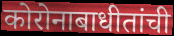
कोरोनाबाधीतांची